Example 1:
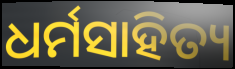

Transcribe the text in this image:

ଧର୍ମସାହିତ୍ୟ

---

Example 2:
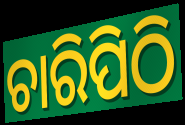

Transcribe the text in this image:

ଚାରିପିଠି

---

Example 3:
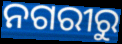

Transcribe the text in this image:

ନଗରୀରୁ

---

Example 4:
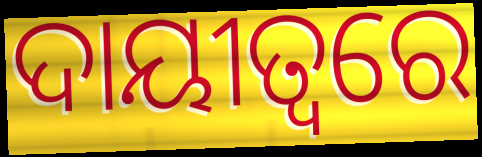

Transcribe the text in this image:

ଦାୟୀତ୍ଵରେ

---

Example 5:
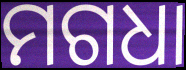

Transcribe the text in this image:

ମଗଧା